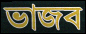
ভাজব